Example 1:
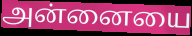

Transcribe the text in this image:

அன்னையை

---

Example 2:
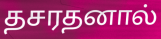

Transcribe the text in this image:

தசரதனால்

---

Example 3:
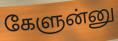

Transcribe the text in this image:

கேளுன்னு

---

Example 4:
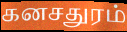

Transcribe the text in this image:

கனசதுரம்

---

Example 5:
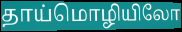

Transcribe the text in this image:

தாய்மொழியிலோ